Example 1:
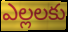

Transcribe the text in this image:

ఎల్లలకు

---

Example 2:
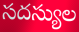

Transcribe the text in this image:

సదస్యుల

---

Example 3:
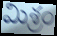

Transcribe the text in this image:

మిశ్రం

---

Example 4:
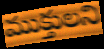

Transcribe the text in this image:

ముక్తులని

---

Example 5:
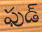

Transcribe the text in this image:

ఫుడ్